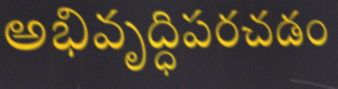
అభివృద్ధిపరచడం